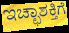
ಇಚ್ಛಾಶಕ್ತಿಗೆ